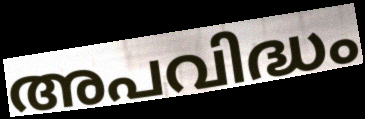
അപവിദ്ധം